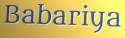
Babariya